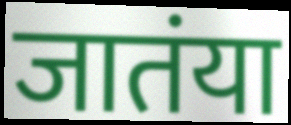
जातंया